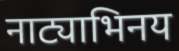
नाट्याभिनय